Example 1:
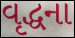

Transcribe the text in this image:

વૃદ્ધના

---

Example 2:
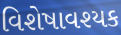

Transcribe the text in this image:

વિશેષાવશ્યક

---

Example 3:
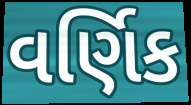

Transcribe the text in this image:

વર્ણિક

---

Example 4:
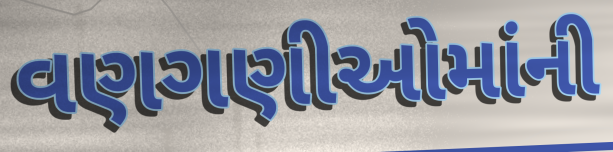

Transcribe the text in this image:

વણગણીઓમાંની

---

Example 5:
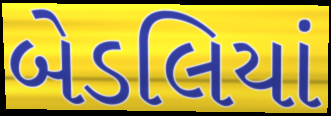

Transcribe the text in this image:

બેડલિયાં